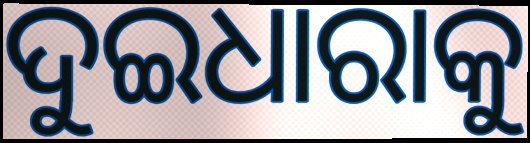
ଦୁଇଧାରାକୁ